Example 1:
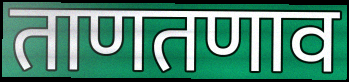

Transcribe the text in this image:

ताणतणाव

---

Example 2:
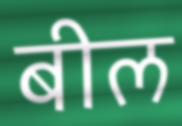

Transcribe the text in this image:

बील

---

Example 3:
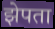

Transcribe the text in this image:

झेपता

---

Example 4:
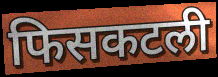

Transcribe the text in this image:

फिसकटली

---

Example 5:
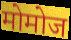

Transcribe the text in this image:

मोमोज